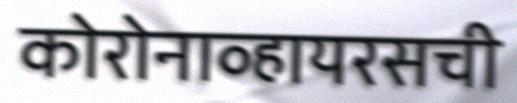
कोरोनाव्हायरसची